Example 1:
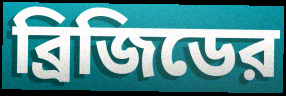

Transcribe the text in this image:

ব্রিজিডের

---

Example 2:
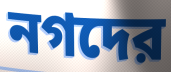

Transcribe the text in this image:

নগদের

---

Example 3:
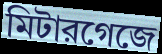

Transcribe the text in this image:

মিটারগেজে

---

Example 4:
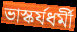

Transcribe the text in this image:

ভাস্কর্যধর্মী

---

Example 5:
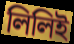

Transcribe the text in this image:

লিলিই